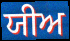
ਯੀਅ